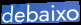
debaixo